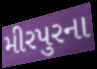
મીરપુરના